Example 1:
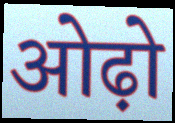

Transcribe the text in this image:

ओढ़ो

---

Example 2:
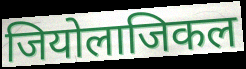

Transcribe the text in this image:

जियोलाजिकल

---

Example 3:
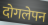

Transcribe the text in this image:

दोगलेपन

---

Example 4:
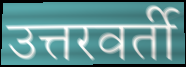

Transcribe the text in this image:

उत्तरवर्ती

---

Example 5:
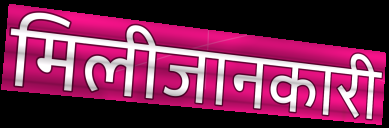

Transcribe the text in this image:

मिलीजानकारी